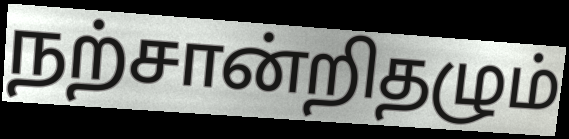
நற்சான்றிதழும்